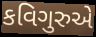
કવિગુરુએ